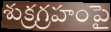
శుక్రగ్రహంపై